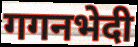
गगनभेदी